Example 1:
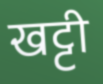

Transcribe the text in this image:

खट्टी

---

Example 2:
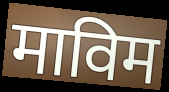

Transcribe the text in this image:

माविम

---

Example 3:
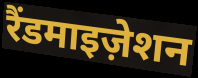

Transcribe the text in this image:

रैंडमाइज़ेशन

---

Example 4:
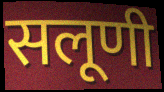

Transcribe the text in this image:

सलूणी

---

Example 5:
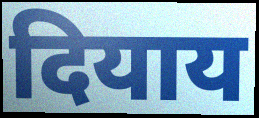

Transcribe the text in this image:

दियाय